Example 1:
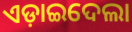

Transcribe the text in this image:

ଏଡ଼ାଇଦେଲା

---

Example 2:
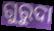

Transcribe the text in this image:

ଗୁରୁଦା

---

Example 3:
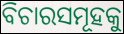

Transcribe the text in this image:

ବିଚାରସମୂହକୁ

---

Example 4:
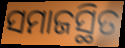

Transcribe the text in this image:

ସମାଜସ୍ଥିତ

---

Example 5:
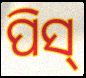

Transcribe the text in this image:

ପିସ୍